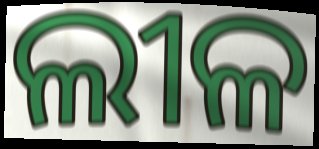
ଲୀଳ